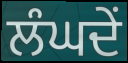
ਲੰਘਦੇਂ